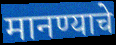
मानण्याचे